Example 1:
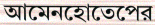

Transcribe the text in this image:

আমেনহোতেপের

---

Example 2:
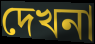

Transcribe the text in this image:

দেখনা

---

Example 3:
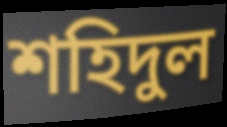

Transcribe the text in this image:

শহিদুল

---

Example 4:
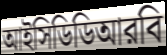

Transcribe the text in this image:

আইসিডিডিআরবি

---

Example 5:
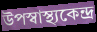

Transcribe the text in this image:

উপস্বাস্থ্যকেন্দ্র